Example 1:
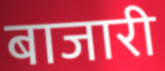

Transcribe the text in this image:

बाजारी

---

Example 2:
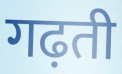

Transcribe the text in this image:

गढ़ती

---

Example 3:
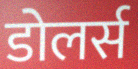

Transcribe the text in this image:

डोलर्स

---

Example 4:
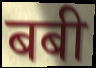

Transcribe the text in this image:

बबी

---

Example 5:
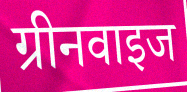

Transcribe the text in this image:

ग्रीनवाइज